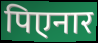
पिएनार